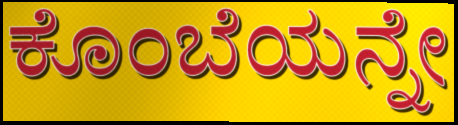
ಕೊಂಬೆಯನ್ನೇ